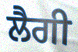
ਲੈਗੀ